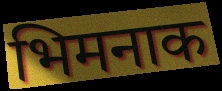
भिमनाक